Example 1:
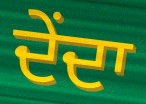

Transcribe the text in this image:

ਦੇਂਦਾ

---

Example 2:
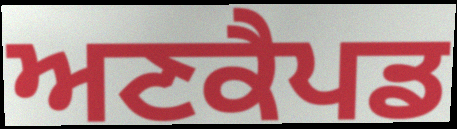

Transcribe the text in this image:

ਅਣਕੈਪਡ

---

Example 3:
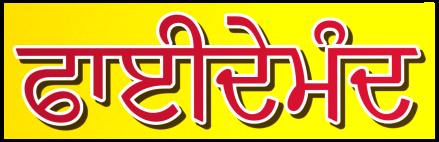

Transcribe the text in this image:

ਫਾਈਦੇਮੰਦ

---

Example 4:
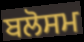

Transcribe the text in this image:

ਬਲੋਸਮ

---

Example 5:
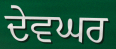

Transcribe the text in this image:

ਦੇਵਘਰ